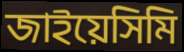
জাইয়েসিমি